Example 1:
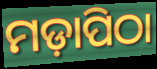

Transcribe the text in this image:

ମଡ଼ାପିଠା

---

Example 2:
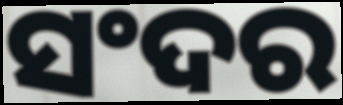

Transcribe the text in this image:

ସଂଦର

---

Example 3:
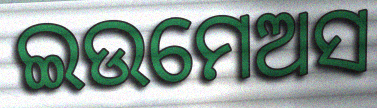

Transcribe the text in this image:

ଇଉମେଅସ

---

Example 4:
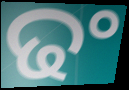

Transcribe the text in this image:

ଢଂ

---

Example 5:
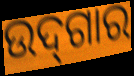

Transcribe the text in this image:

ଉଦ୍‌ଗାର